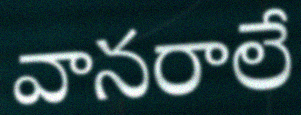
వానరాలే